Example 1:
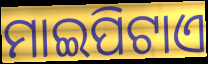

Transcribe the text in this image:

ମାଇପିଟାଏ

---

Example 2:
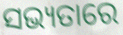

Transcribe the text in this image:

ସଭ୍ୟତାରେ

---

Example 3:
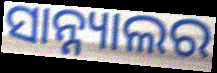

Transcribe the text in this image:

ସାନ୍ନ୍ୟାଲର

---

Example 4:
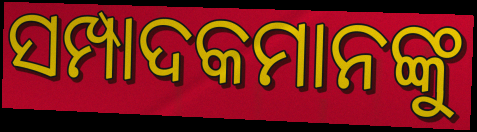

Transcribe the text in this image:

ସମ୍ପାଦକମାନଙ୍କୁ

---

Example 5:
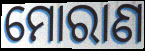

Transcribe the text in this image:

ମୋରାଣ